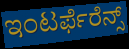
ಇಂಟರ್ಫೆರೆನ್ಸ್